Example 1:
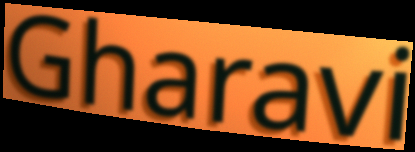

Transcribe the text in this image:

Gharavi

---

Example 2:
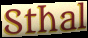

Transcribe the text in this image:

Sthal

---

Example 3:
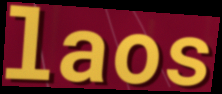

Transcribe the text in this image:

laos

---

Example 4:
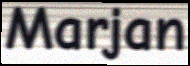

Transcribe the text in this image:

Marjan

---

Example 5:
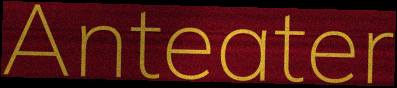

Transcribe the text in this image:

Anteater